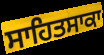
ਸਾਹਿਤਸਾਕਾ